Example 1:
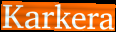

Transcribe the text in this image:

Karkera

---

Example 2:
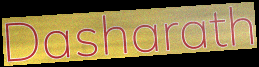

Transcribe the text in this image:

Dasharath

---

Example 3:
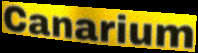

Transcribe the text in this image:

Canarium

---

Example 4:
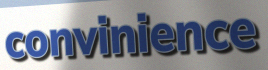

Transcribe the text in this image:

convinience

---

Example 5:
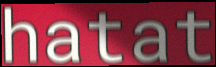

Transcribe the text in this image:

hatat